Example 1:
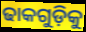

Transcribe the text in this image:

ଢାକଗୁଡ଼ିକୁ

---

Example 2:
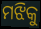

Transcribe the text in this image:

ମଝିକୁ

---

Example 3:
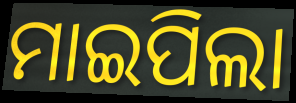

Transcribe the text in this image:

ମାଇପିଲା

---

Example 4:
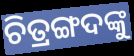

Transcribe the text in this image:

ଚିତ୍ରଙ୍ଗଦଙ୍କୁ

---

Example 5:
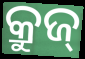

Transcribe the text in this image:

କ୍ରୁଜ୍